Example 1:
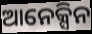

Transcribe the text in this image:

ଆନେକ୍ସିନ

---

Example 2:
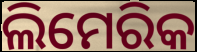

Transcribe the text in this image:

ଲିମେରିକ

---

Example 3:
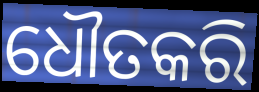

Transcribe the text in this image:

ଧୌତକରି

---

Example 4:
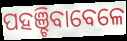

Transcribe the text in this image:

ପହଞ୍ଚିବାବେଳେ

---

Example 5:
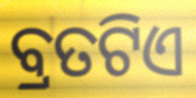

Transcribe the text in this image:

ବ୍ରତଟିଏ